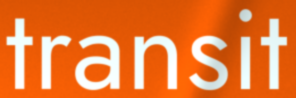
transit